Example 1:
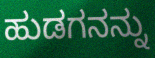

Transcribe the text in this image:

ಹುಡಗನನ್ನು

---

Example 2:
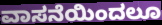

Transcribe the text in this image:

ವಾಸನೆಯಿಂದಲೂ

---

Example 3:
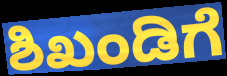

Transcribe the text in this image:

ಶಿಖಂಡಿಗೆ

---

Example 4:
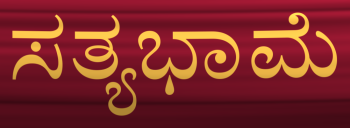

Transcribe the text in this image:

ಸತ್ಯಭಾಮೆ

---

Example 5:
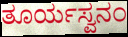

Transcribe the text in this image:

ತೂರ್ಯಸ್ವನಂ